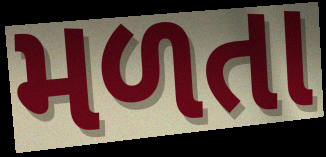
મળતા